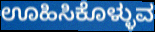
ಊಹಿಸಿಕೊಳ್ಳುವ